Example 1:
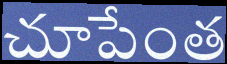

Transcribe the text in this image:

చూపేంత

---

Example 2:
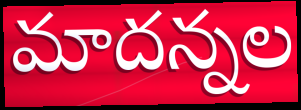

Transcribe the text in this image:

మాదన్నల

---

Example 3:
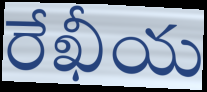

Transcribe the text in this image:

రేఖీయ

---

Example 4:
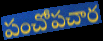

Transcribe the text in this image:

పంచోపచార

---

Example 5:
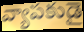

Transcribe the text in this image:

వ్యాపకుడై